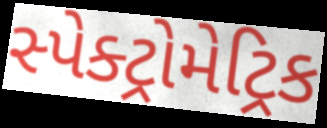
સ્પેક્ટ્રોમેટ્રિક